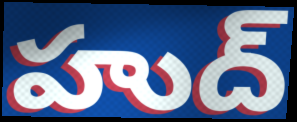
హుద్